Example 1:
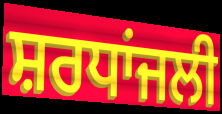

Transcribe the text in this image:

ਸ਼ਰਧਾਂਜਲੀ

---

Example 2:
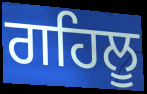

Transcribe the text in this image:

ਗਹਿਲੂ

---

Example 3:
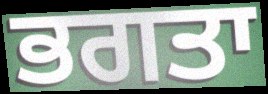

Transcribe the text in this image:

ਭਗਤਾ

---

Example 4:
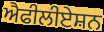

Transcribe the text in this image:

ਐਫੀਲੀਏਸ਼ਨ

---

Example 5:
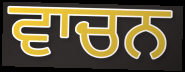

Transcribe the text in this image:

ਵਾਚਨ